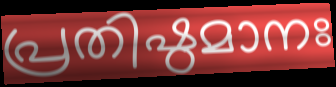
പ്രതിഷ്ഠമാനഃ